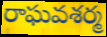
రాఘవశర్మ